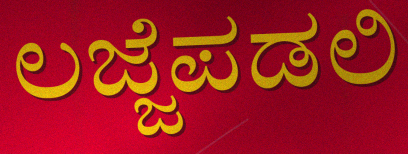
ಲಜ್ಜೆಪಡಲಿ